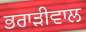
ਭਰਾੜੀਵਾਲ